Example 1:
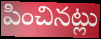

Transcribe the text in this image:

పించినట్లు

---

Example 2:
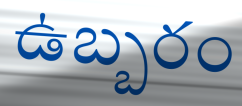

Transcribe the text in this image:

ఉబ్బరం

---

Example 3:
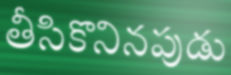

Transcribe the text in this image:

తీసికొనినపుడు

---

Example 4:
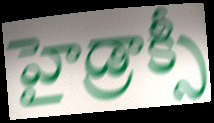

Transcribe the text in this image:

హైడ్రాక్సీ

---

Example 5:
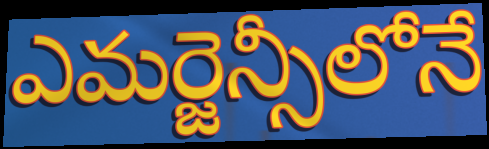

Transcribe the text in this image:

ఎమర్జెన్సీలోనే